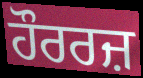
ਹੌਰਰਜ਼